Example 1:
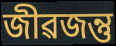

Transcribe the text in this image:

জীৱজন্তু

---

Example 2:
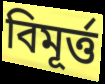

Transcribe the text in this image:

বিমূৰ্ত্ত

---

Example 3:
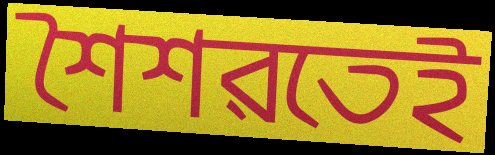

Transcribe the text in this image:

শৈশৱতেই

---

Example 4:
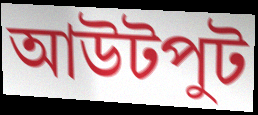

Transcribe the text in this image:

আউটপুট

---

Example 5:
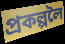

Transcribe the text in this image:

প্ৰকল্পলৈ